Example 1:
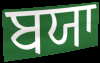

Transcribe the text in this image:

ਬਯਾ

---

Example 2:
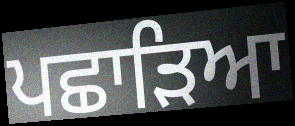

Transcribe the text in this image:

ਪਛਾੜਿਆ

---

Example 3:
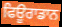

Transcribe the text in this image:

ਫਿਊਰਾਡਾਨ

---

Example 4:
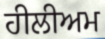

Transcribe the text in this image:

ਹੀਲੀਅਮ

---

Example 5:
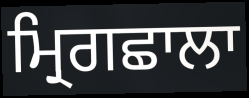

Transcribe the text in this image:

ਮ੍ਰਿਗਛਾਲਾ